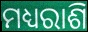
ମଧ୍ୟରାଶି